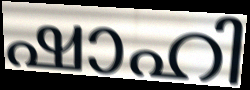
ഷാഹി